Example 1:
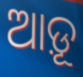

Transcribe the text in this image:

ଆଡ଼ୂ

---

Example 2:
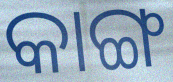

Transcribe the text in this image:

କାଙ୍ଗ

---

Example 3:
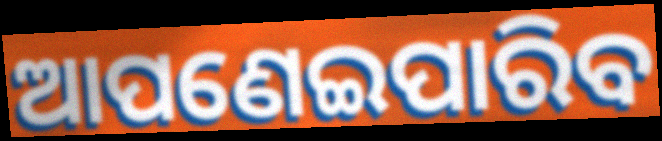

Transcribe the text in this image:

ଆପଣେଇପାରିବ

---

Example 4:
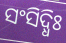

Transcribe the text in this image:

ସଂସିଦ୍ଧିଃ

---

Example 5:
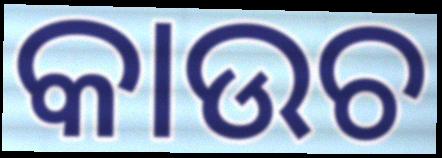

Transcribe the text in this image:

କାଉଚ